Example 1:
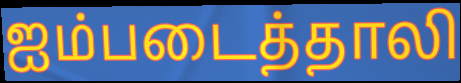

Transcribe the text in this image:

ஐம்படைத்தாலி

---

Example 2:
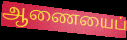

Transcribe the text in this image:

ஆணையைப்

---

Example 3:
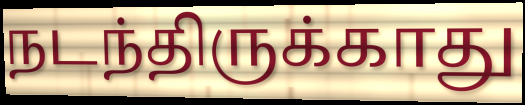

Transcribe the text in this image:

நடந்திருக்காது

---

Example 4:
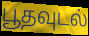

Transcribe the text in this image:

பூதவுடல்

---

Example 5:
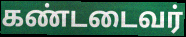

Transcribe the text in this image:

கண்டடைவர்